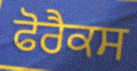
ਫੋਰੈਕਸ